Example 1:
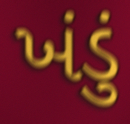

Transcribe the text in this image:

ખંડું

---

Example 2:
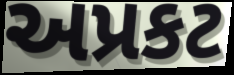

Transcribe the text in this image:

અપ્રકટ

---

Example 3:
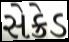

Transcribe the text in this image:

સેક્રેડ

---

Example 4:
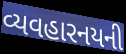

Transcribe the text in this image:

વ્યવહારનયની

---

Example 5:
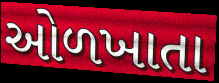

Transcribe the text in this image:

ઓળખાતા